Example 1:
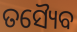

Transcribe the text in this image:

ତସ୍ୟୈବ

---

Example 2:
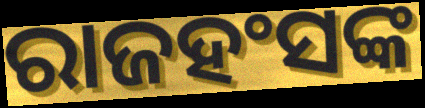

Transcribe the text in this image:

ରାଜହଂସଙ୍କ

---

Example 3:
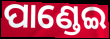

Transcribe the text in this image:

ପାଣ୍ଡେଇ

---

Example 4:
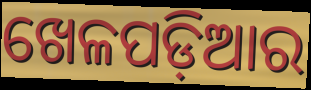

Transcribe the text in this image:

ଖେଳପଡ଼ିଆର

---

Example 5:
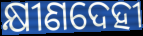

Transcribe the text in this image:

କ୍ଷୀଣଦେହୀ